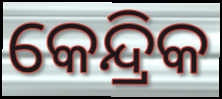
କେନ୍ଦ୍ରିକ